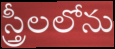
స్త్రీలలోను